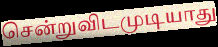
சென்றுவிடமுடியாது